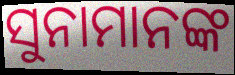
ସୁନାମାନଙ୍କ